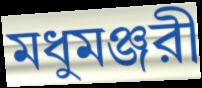
মধুমঞ্জরী